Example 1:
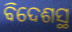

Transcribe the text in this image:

ବିଦେଶସ୍ଥ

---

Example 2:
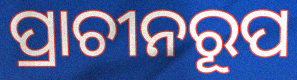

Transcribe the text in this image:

ପ୍ରାଚୀନରୂପ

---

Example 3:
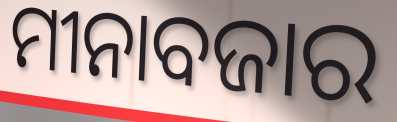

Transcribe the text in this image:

ମୀନାବଜାର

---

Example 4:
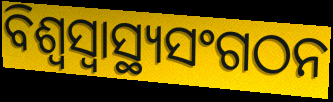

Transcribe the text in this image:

ବିଶ୍ଵସ୍ଵାସ୍ଥ୍ୟସଂଗଠନ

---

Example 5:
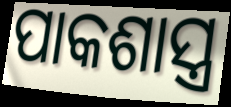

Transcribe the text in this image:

ପାକଶାସ୍ତ୍ର